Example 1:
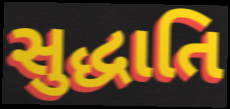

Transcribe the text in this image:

સુદ્ધાતિ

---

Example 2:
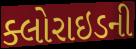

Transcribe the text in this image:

ક્લોરાઇડની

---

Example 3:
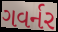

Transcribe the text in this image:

ગવર્નર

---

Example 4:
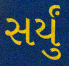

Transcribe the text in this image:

સર્યું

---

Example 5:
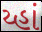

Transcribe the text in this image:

ય્હાં